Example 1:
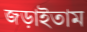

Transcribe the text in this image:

জড়াইতাম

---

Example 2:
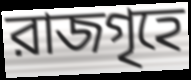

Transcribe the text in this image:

রাজগৃহে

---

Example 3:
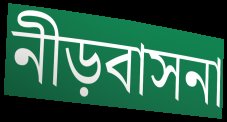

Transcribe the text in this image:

নীড়বাসনা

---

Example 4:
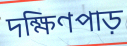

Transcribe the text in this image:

দক্ষিণপাড়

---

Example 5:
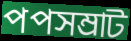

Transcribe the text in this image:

পপসম্রাট